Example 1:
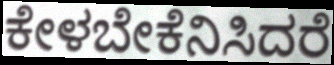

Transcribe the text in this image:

ಕೇಳಬೇಕೆನಿಸಿದರೆ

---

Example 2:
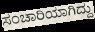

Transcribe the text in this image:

ಸಂಚಾರಿಯಾಗಿದ್ದು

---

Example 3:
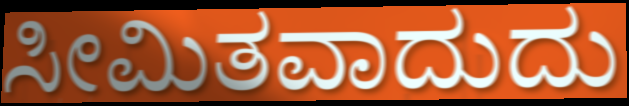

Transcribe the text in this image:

ಸೀಮಿತವಾದುದು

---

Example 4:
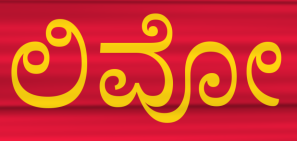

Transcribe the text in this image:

ಲಿವೋ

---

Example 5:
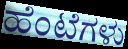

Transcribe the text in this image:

ಹೆಂಟೆಗಳು